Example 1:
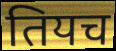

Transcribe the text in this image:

तियच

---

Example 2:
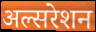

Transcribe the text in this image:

अल्सरेशन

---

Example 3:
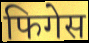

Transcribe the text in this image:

फिगेस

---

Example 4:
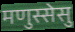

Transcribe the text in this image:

मणुस्सेसु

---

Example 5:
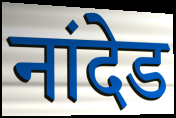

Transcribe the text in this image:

नांदेड